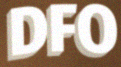
DFO